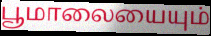
பூமாலையையும்